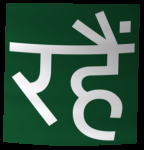
रहैं